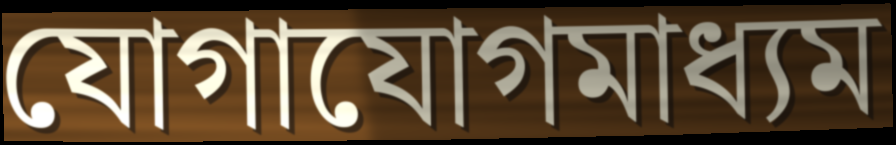
যোগাযোগমাধ্যম